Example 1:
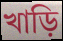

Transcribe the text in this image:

খাড়ি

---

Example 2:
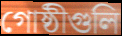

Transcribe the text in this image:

গোষ্ঠীগুলি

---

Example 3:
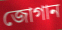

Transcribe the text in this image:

জোগান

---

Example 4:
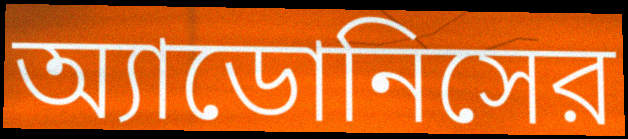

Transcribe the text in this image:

অ্যাডোনিসের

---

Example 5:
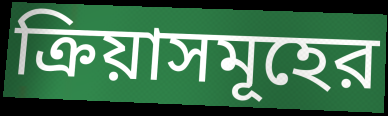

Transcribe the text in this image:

ক্রিয়াসমূহের